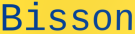
Bisson